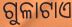
ଗୁଳାଟାଏ